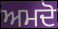
ਅਮਦੋ